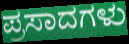
ಪ್ರಸಾದಗಳು